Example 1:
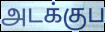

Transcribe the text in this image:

அடக்குப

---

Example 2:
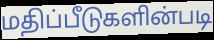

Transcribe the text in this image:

மதிப்பீடுகளின்படி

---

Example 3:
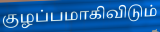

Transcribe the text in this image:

குழப்பமாகிவிடும்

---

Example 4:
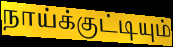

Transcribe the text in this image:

நாய்க்குட்டியும்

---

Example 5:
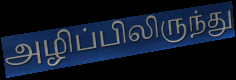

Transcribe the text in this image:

அழிப்பிலிருந்து